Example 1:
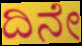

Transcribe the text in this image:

ದಿನೇ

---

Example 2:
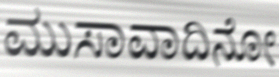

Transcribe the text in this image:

ಮುಸಾವಾದಿನೋ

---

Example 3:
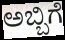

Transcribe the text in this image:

ಅಬ್ಬಿಗೆ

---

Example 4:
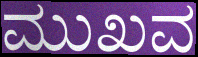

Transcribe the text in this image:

ಮುಖವ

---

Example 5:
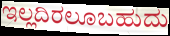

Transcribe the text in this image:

ಇಲ್ಲದಿರಲೂಬಹುದು